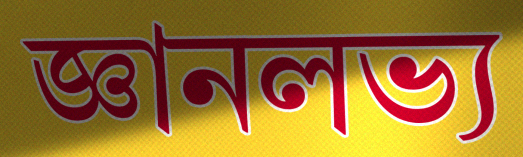
জ্ঞানলভ্য